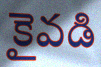
కైవడి